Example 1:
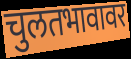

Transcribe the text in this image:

चुलतभावावर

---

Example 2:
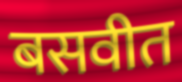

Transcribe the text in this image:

बसवीत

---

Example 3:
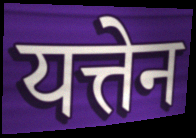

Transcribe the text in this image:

यत्तेन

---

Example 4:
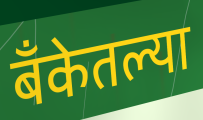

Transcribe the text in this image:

बँकेतल्या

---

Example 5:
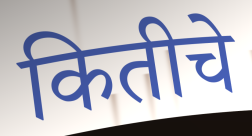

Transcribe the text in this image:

कितीचे